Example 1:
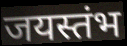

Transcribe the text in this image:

जयस्तंभ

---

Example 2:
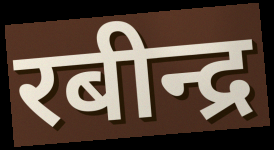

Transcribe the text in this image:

रबीन्द्र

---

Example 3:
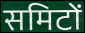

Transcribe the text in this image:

समिटों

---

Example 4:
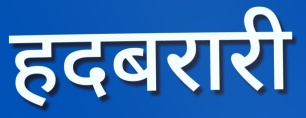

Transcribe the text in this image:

हदबरारी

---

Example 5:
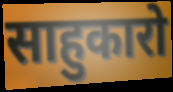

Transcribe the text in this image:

साहुकारो